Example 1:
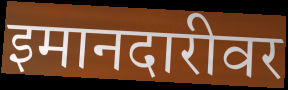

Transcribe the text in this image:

इमानदारीवर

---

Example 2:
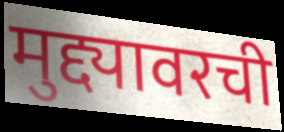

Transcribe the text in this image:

मुद्द्यावरची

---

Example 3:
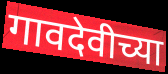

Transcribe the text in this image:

गावदेवीच्या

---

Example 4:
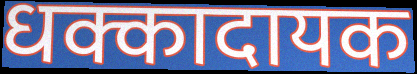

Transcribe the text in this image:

धक्कादायक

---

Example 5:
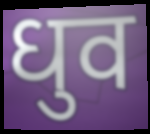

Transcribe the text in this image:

धुव